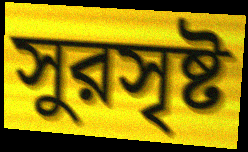
সুরসৃষ্ট